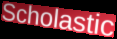
Scholastic